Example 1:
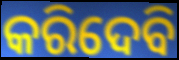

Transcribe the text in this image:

କରିଦେବି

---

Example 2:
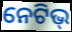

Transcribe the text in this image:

ନେଟିଭ୍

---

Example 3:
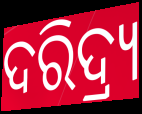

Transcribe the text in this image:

ଦରିଦ୍ର୍ୟ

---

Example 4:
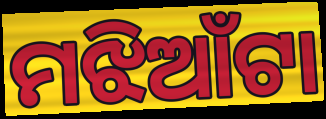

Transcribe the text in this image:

ମଝିଆଁଟା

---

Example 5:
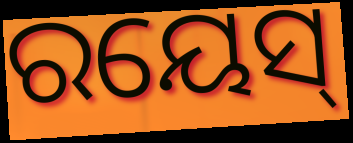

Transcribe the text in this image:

ରୟେସ୍